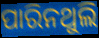
ପାରିନଥୁଲି